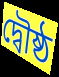
দ্বৌষ্ঠ